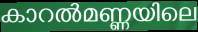
കാറൽമണ്ണയിലെ